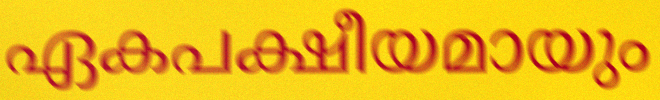
ഏകപക്ഷീയമായും